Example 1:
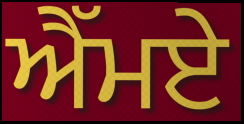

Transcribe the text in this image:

ਐੱਮਏ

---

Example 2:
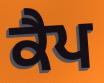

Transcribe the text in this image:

ਕੈਪ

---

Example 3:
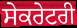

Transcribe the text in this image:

ਸੇਕਰੇਟਰੀ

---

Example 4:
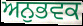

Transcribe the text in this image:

ਅਨੁਭਵਕ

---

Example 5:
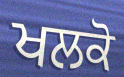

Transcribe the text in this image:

ਖਲਕੋ